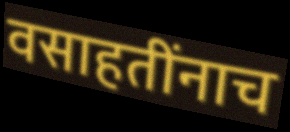
वसाहतींनाच